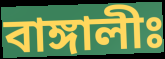
বাঙ্গালীঃ